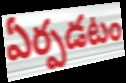
ఏర్పడటం